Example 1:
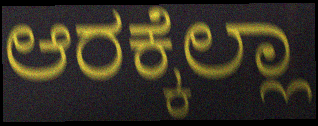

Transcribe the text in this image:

ಆರಕ್ಕೆಲ್ಲಾ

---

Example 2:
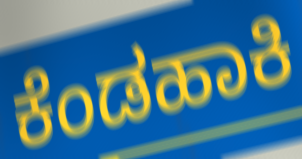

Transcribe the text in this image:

ಕೆಂಡಹಾಕಿ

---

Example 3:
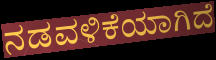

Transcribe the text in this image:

ನಡವಳಿಕೆಯಾಗಿದೆ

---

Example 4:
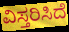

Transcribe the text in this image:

ವಿಸ್ತರಿಸಿದೆ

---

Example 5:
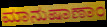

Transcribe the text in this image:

ಮಾನುಷಾಣಾಂ